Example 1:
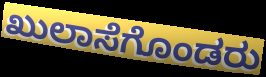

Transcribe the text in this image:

ಖುಲಾಸೆಗೊಂಡರು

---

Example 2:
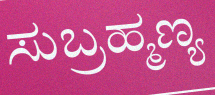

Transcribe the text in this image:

ಸುಬ್ರಹ್ಮಣ್ಯ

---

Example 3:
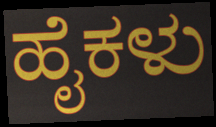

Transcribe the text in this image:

ಹೈಕಳು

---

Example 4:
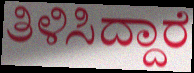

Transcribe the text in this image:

ತಿಳಿಸಿದ್ದಾರೆ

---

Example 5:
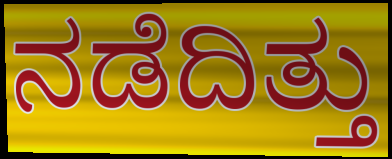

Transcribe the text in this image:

ನಡೆದಿತ್ತು